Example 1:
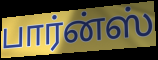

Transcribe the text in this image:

பார்ன்ஸ்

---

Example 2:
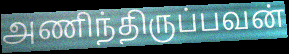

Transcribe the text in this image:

அணிந்திருப்பவன்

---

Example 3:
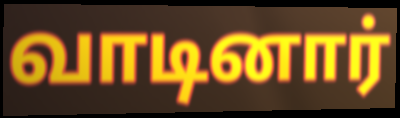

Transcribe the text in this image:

வாடினார்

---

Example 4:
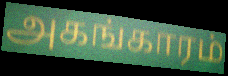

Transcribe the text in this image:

அகங்காரம்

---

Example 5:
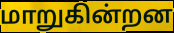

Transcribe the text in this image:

மாறுகின்றன